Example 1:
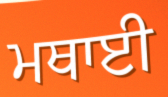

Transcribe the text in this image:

ਮਥਾਈ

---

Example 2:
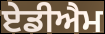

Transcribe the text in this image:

ਏਡੀਐਮ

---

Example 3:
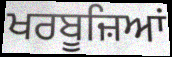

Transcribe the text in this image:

ਖਰਬੂਜ਼ਿਆਂ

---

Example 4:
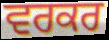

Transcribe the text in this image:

ਵਰਕਰ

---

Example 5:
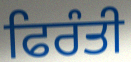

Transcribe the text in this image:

ਫਿਰੰਤੀ